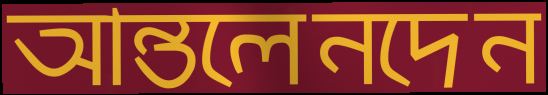
আন্তলেনদেন